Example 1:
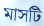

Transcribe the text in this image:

মাসটি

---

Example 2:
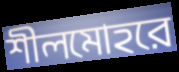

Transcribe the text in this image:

শীলমোহরে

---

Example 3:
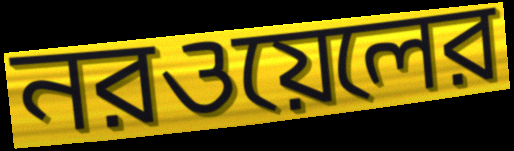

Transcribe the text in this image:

নরওয়েলের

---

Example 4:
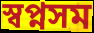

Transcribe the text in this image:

স্বপ্নসম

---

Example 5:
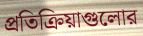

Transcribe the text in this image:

প্রতিক্রিয়াগুলোর